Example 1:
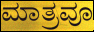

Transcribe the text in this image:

ಮಾತ್ರವೂ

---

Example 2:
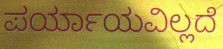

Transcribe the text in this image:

ಪರ್ಯಾಯವಿಲ್ಲದೆ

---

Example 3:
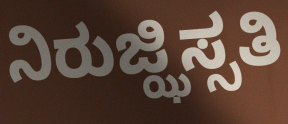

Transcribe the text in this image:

ನಿರುಜ್ಝಿಸ್ಸತಿ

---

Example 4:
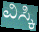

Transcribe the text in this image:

ವಿಸ್ಕಿ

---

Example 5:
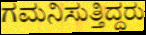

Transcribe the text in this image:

ಗಮನಿಸುತ್ತಿದ್ದರು